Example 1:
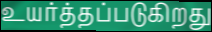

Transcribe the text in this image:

உயர்த்தப்படுகிறது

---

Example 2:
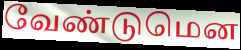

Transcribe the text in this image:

வேண்டுமென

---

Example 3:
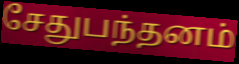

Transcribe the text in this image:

சேதுபந்தனம்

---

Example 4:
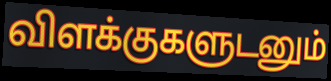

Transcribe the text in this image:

விளக்குகளுடனும்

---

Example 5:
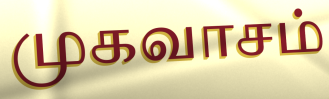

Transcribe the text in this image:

முகவாசம்